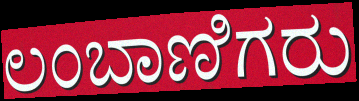
ಲಂಬಾಣಿಗರು